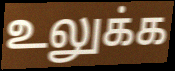
உலுக்க